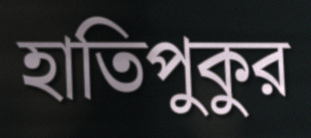
হাতিপুকুর